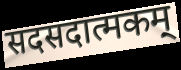
सदसदात्मकम्